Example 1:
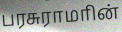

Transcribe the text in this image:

பரசுராமரின்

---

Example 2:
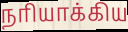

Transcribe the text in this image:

நரியாக்கிய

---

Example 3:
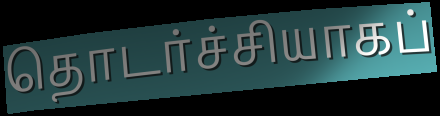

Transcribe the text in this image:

தொடர்ச்சியாகப்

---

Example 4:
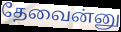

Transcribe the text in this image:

தேவைன்னு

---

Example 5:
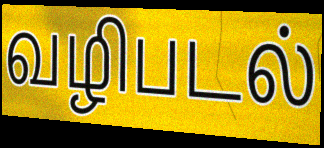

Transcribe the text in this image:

வழிபடல்